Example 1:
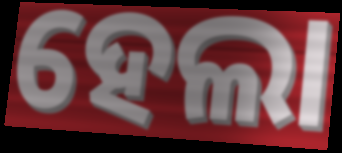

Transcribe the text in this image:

ହେଲା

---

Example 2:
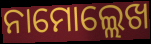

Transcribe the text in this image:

ନାମୋଲ୍ଲେଖ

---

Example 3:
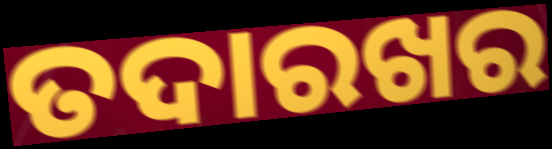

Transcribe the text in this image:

ତଦାରଖର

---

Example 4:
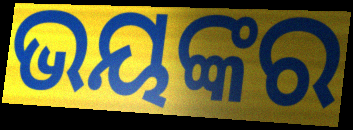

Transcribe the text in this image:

ଭୟଙ୍କର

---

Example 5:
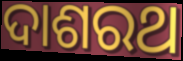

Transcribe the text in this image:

ଦାଶରଥ